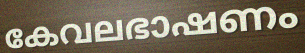
കേവലഭാഷണം